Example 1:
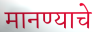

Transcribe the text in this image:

मानण्याचे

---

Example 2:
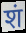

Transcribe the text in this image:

शं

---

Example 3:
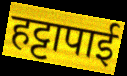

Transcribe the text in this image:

हट्टापाई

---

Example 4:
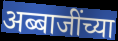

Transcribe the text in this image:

अब्बाजींच्या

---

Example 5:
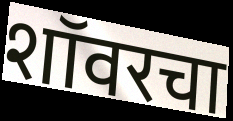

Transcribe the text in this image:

शॉवरचा